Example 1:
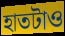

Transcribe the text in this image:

হাতটাও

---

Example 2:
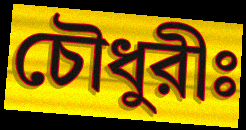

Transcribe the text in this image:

চৌধুরীঃ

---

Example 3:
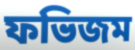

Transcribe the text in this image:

ফভিজম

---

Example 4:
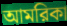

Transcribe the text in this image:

আমরিকা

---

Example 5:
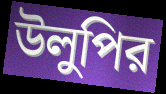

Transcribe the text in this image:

উলুপির